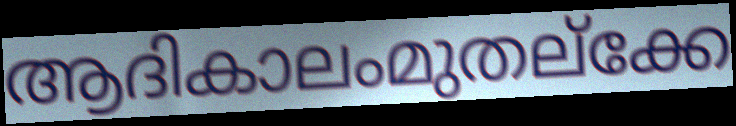
ആദികാലംമുതല്ക്കേ